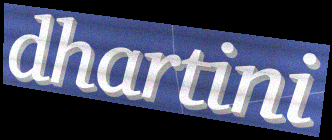
dhartini